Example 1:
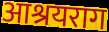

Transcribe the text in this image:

आश्रयराग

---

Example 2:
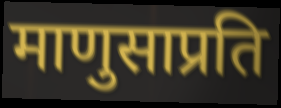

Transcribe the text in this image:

माणुसाप्रति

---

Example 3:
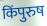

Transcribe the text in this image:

किंपुरुष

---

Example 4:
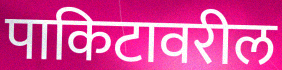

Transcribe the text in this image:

पाकिटावरील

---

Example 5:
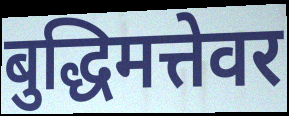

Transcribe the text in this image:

बुद्धिमत्तेवर